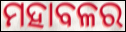
ମହାବଳର